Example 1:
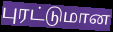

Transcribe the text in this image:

புரட்டுமான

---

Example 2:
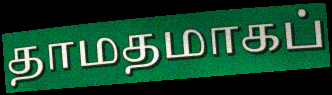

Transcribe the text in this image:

தாமதமாகப்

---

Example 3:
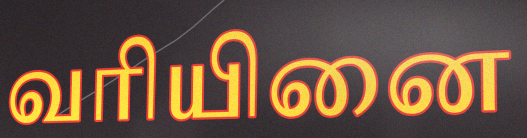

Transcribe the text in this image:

வரியினை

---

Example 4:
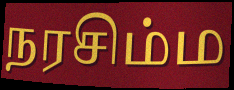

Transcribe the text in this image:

நரசிம்ம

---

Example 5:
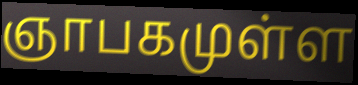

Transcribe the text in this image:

ஞாபகமுள்ள